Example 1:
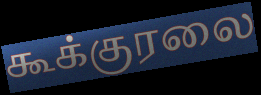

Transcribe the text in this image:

கூக்குரலை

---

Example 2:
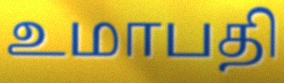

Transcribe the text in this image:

உமாபதி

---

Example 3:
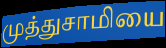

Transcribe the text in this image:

முத்துசாமியை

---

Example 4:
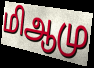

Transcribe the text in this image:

மிஆமு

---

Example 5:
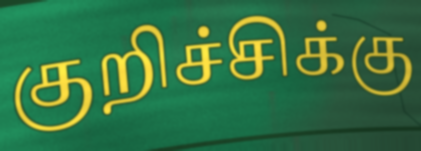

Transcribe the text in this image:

குறிச்சிக்கு